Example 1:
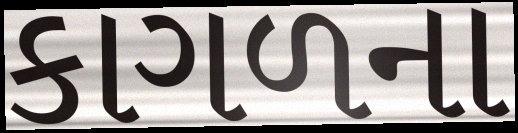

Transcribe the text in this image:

કાગળના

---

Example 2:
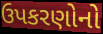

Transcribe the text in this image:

ઉપકરણોનો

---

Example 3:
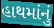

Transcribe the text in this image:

હાથમાંનું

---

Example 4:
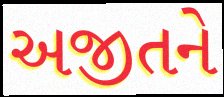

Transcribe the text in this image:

અજીતને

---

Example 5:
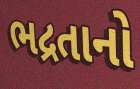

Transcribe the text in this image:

ભદ્રતાનો